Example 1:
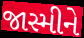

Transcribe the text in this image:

જાસ્મીને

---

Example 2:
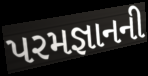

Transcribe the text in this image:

પરમજ્ઞાનની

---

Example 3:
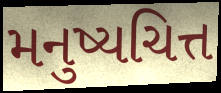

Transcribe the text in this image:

મનુષ્યચિત્ત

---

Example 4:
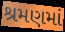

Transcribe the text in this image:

શ્રમણમાં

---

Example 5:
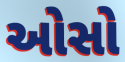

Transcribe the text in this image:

ઓસો